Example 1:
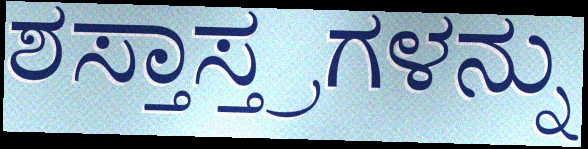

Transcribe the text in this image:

ಶಸ್ತಾಸ್ತ್ರಗಳನ್ನು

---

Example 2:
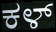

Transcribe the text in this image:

ಕಳ್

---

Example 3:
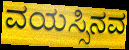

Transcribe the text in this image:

ವಯಸ್ಸಿನವ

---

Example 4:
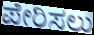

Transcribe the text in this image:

ಪೇರಿಸಲು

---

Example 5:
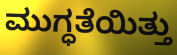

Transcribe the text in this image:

ಮುಗ್ಧತೆಯಿತ್ತು